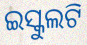
ଇସ୍କୁଲଟି